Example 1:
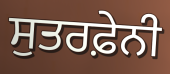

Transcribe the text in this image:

ਸੁਤਰਫ਼ੇਨੀ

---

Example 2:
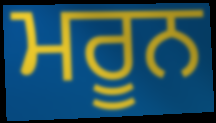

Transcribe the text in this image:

ਮਰੂਨ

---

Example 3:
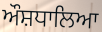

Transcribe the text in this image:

ਔਸ਼ਧਾਲਿਆ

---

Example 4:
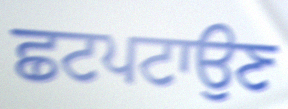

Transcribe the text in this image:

ਛਟਪਟਾਉਣ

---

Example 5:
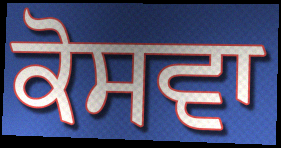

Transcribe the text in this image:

ਕੋਸਵਾ